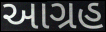
આગ્રહ